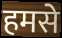
हमसे